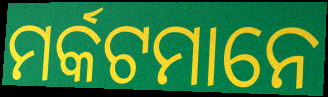
ମର୍କଟମାନେ